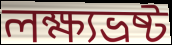
লক্ষ্যভ্রষ্ট